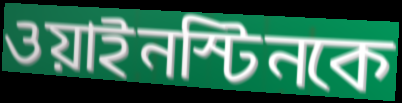
ওয়াইনস্টিনকে